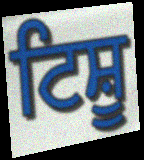
ਟਿਸ਼ੂ